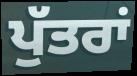
ਪੁੱਤਰਾਂ